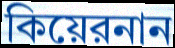
কিয়েরনান